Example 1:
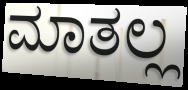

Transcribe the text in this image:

ಮಾತಲ್ಲ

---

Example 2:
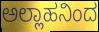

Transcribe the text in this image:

ಅಲ್ಲಾಹನಿಂದ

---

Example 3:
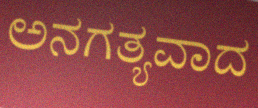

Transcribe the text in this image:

ಅನಗತ್ಯವಾದ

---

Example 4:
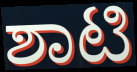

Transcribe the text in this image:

ಶಾಟಿ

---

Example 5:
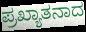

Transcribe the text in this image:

ಪ್ರಖ್ಯಾತನಾದ